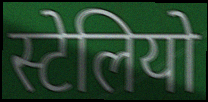
स्टेलियो